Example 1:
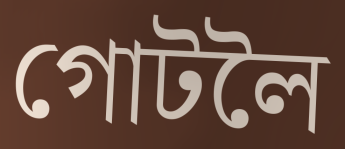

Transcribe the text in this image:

গোটলৈ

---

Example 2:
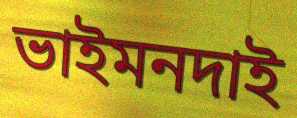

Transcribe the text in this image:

ভাইমনদাই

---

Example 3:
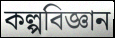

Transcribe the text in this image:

কল্পবিজ্ঞান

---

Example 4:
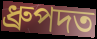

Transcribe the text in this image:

ধ্ৰুপদত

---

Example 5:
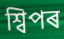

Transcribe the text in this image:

শ্বিপৰ